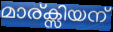
മാര്ക്സിയന്